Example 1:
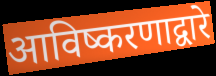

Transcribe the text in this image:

आविष्करणाद्वारे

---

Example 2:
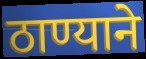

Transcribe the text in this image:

ठाण्याने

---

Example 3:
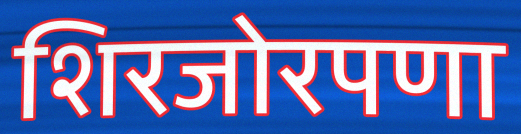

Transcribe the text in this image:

शिरजोरपणा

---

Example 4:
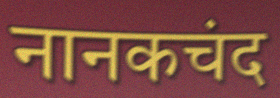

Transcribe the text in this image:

नानकचंद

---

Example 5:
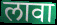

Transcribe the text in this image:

लावा